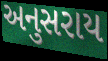
અનુસરાય